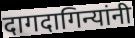
दागदागिन्यांनी